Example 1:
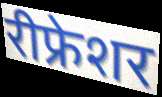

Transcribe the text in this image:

रीफ्रेशर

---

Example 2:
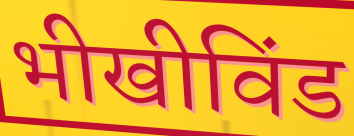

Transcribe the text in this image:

भीखीविंड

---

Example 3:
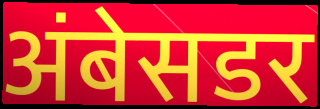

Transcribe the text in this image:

अंबेसडर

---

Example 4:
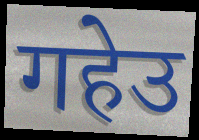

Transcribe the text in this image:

गहेउ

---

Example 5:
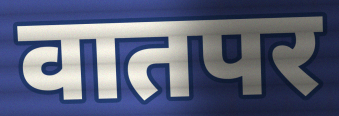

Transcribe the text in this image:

वातपर